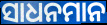
ସାଧନମାନ